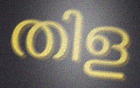
തിള